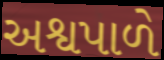
અશ્વપાળે